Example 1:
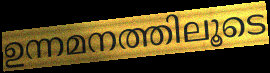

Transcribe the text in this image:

ഉന്നമനത്തിലൂടെ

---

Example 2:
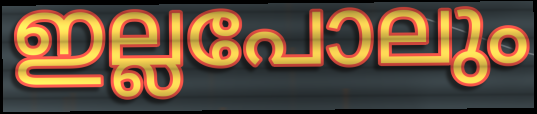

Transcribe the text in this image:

ഇല്ലപോലും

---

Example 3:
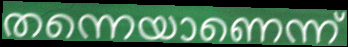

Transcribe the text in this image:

തന്നെയാണെന്ന്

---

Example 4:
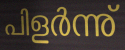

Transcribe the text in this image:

പിളർന്നു്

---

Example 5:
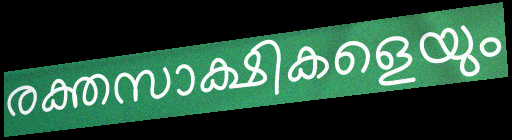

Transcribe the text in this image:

രക്തസാക്ഷികളെയും